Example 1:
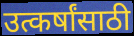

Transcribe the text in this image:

उत्कर्षांसाठी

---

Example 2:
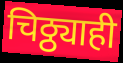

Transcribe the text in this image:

चिठ्ठ्याही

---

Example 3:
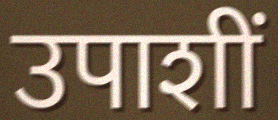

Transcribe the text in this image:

उपाशीं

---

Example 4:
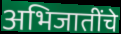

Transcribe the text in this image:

अभिजातींचे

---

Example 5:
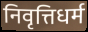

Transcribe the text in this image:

निवृत्तिधर्म